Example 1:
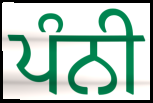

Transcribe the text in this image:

ਪੰਨੀ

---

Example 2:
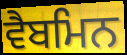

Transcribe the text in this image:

ਵੈਬਮਿਨ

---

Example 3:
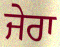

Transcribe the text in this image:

ਜੇਰਾ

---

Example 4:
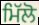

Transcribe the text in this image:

ਮਿੱਲੋ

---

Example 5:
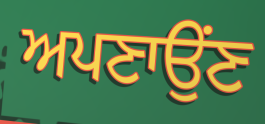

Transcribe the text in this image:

ਅਪਣਾਉਂਣ